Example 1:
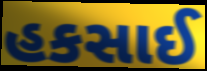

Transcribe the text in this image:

હકસાઈ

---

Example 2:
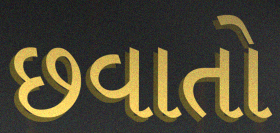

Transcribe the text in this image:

છવાતો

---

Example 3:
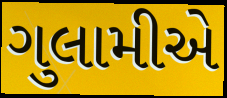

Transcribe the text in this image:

ગુલામીએ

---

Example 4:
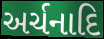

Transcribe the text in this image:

અર્ચનાદિ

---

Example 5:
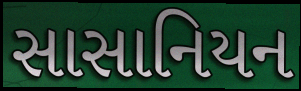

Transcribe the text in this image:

સાસાનિયન